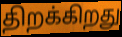
திறக்கிறது